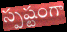
స్పష్టంగా